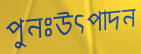
পুনঃউৎপাদন